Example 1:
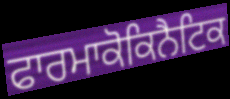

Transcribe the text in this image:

ਫਾਰਮਾਕੋਕਿਨੈਟਿਕ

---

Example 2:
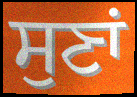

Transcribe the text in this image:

ਸੁਣਾਂ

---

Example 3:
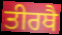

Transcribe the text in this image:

ਤੀਰਥੈ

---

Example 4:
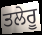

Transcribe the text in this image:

ਤਲੇਰੂ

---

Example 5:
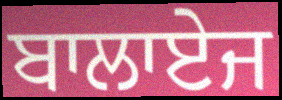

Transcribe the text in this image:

ਬਾਲਾਏਜ